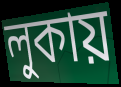
লুকায়